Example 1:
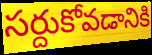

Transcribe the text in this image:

సర్దుకోవడానికి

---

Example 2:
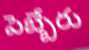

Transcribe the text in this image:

పెబ్బేరు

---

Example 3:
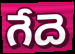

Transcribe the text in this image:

గేదె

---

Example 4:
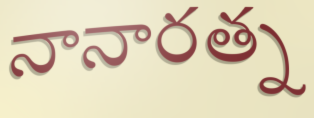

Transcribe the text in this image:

నానారత్న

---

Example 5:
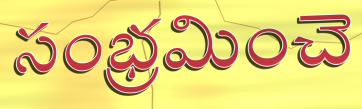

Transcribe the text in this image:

సంభ్రమించె